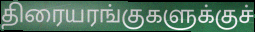
திரையரங்குகளுக்குச்